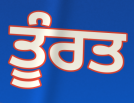
ਤੂੰਰਤ